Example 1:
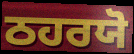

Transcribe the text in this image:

ਠਹਰਯੋ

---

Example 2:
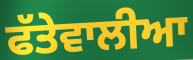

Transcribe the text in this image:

ਫੱਤੇਵਾਲੀਆ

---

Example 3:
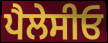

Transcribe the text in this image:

ਪੈਲੇਸੀਓ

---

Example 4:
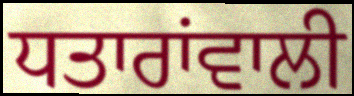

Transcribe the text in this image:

ਧਤਾਰਾਂਵਾਲੀ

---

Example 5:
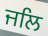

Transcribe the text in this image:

ਜਲਿ